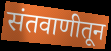
संतवाणीतून